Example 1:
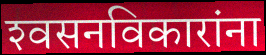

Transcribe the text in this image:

श्वसनविकारांना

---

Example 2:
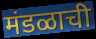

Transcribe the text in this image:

मंडळाची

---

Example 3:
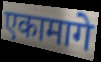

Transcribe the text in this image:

एकामागे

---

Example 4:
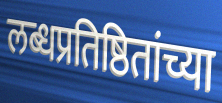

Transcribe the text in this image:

लब्धप्रतिष्ठितांच्या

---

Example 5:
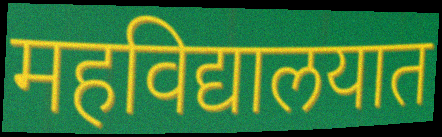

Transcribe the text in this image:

महविद्यालयात